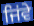
ਜਿਂਵੇ